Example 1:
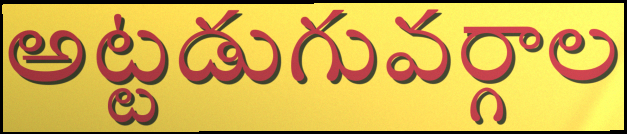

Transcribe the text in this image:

అట్టడుగువర్గాల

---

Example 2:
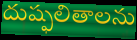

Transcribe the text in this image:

దుష్ఫలితాలను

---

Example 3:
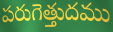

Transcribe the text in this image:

పరుగెత్తుదము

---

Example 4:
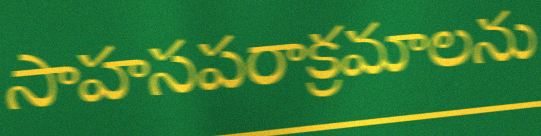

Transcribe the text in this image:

సాహసపరాక్రమాలను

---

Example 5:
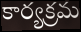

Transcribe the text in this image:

కార్యక్రమ